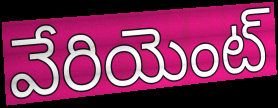
వేరియెంట్